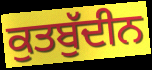
ਕੁਤਬੁੱਦੀਨ